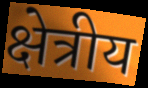
क्षेत्रीय